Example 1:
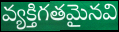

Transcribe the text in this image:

వ్యక్తిగతమైనవి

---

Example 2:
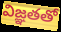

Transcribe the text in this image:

విజ్ఞతతో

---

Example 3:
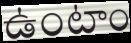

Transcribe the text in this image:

ఉంటాం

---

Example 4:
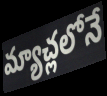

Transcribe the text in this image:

మ్యాచ్లలోనే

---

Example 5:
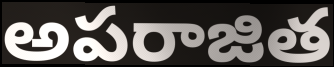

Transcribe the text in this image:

అపరాజిత